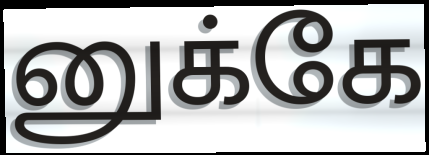
னுக்கே